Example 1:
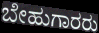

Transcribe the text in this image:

ಬೇಹುಗಾರರು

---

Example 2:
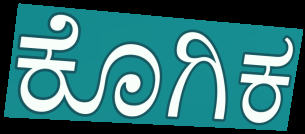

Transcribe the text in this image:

ಕೊಗಿಕ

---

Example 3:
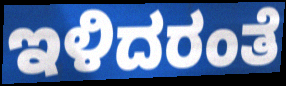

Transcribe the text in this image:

ಇಳಿದರಂತೆ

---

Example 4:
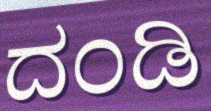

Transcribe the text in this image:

ದಂಡಿ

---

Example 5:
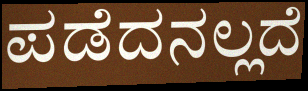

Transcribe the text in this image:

ಪಡೆದನಲ್ಲದೆ